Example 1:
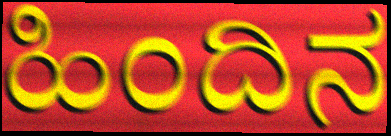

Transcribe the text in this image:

ಹಿಂದಿನ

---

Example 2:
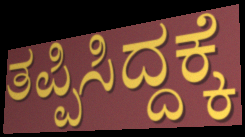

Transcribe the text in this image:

ತಪ್ಪಿಸಿದ್ದಕ್ಕೆ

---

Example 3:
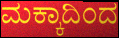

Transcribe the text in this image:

ಮಕ್ಕಾದಿಂದ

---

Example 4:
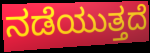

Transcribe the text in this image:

ನಡೆಯುತ್ತದೆ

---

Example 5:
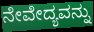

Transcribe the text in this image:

ನೇವೇದ್ಯವನ್ನು